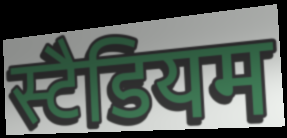
स्टैडियम